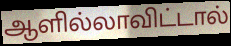
ஆளில்லாவிட்டால்